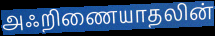
அஃறிணையாதலின்